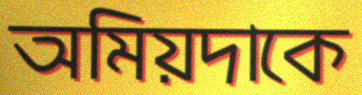
অমিয়দাকে